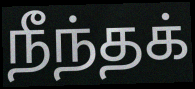
நீந்தக்